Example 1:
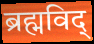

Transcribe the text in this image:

ब्रह्मविद्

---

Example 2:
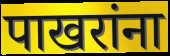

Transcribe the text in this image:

पाखरांना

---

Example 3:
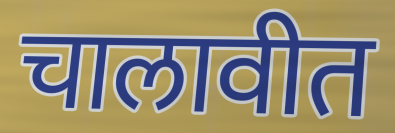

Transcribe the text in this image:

चालावीत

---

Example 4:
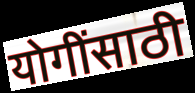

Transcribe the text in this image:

योगींसाठी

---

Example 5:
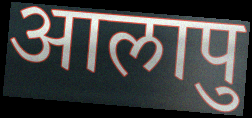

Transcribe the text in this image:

आलापु